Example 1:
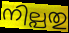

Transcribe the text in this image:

നില്പതു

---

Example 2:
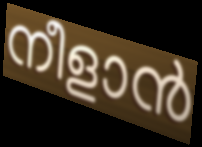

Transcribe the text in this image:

നീളാൻ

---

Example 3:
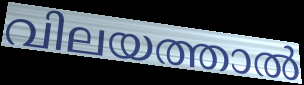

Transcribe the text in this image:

വിലയത്താൽ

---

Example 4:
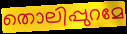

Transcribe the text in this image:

തൊലിപ്പുറമേ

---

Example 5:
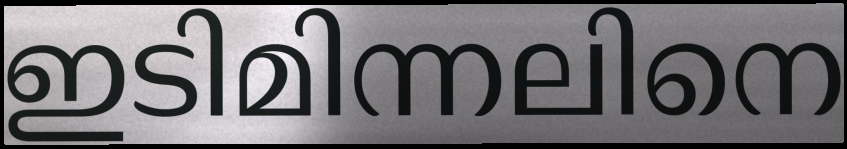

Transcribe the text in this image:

ഇടിമിന്നലിനെ